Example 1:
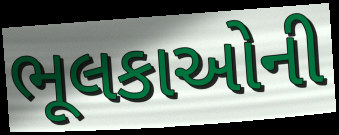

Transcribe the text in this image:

ભૂલકાઓની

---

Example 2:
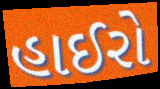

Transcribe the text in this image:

હાઈરો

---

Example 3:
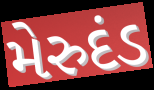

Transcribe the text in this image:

મેરુદંડ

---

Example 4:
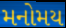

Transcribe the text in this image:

મનોમય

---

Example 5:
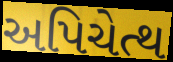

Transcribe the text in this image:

અપિચેત્થ